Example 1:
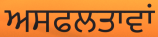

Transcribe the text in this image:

ਅਸਫਲਤਾਵਾਂ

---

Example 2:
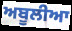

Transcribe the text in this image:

ਅਬੂਲੀਆ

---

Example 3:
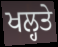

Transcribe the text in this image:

ਖਲ੍ਹਤੇ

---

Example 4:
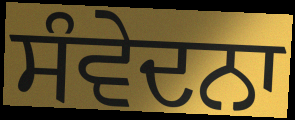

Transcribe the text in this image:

ਸੰਵੇਦਨਾ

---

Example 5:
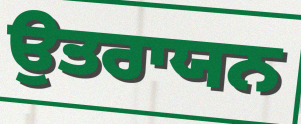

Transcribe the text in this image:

ਉਤਰਾਯਨ